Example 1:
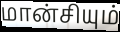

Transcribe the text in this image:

மான்சியும்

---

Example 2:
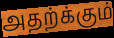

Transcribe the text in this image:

அதற்க்கும்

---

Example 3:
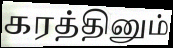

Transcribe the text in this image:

கரத்தினும்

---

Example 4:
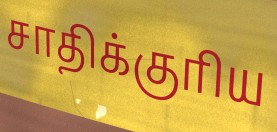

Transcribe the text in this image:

சாதிக்குரிய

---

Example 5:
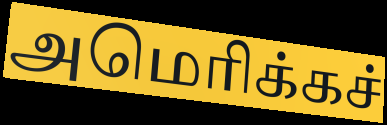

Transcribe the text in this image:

அமெரிக்கச்